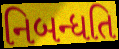
નિબન્ધતિ